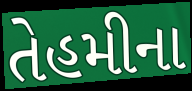
તેહમીના